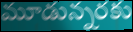
మూడున్నరకు